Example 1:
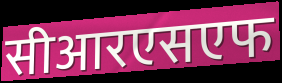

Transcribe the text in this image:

सीआरएसएफ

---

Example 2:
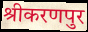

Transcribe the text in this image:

श्रीकरणपुर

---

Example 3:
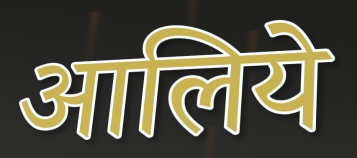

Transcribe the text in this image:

आलिये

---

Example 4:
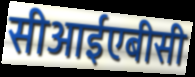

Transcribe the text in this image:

सीआईएबीसी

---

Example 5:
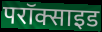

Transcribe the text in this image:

परॉक्साइड